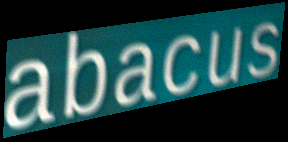
abacus